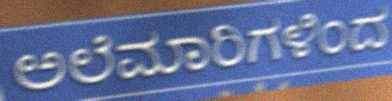
ಅಲೆಮಾರಿಗಳಿಂದ